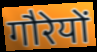
गौरेयों